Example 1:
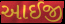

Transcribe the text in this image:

આઈજી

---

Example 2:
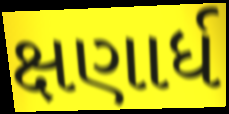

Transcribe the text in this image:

ક્ષણાર્ધ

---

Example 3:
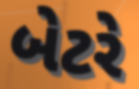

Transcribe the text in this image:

બેટરે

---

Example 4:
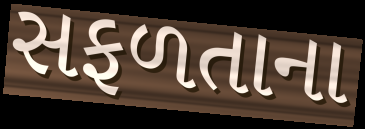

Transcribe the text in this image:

સફળતાના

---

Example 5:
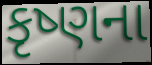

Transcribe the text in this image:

કૃષ્ણના